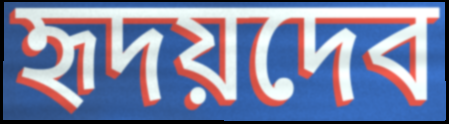
হৃদয়দেব